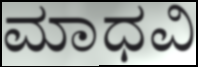
ಮಾಧವಿ